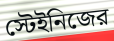
স্টেইনিজের